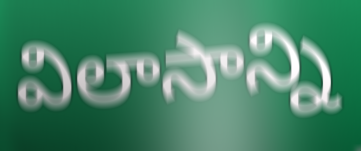
విలాసాన్ని